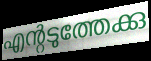
എന്റടുത്തേക്കു